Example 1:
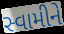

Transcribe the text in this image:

સ્વામીને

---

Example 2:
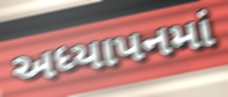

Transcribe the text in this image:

અધ્યાપનમાં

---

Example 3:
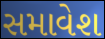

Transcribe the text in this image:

સમાવેશ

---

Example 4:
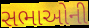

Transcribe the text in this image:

સભાઓની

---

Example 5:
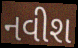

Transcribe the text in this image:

નવીશ